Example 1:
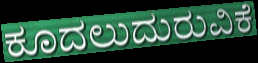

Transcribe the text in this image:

ಕೂದಲುದುರುವಿಕೆ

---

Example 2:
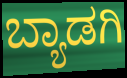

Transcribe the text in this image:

ಬ್ಯಾಡಗಿ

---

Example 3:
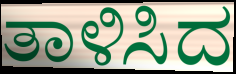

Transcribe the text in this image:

ತಾಳಿಸಿದ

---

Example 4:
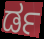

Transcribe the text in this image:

ರ್ಡ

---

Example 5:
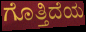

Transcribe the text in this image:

ಗೊತ್ತಿದೆಯ